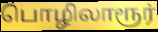
பொழிலாரூர்